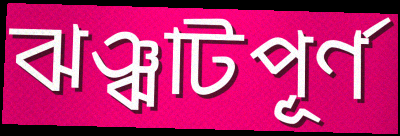
ঝঞ্ঝাটপূর্ণ